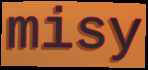
misy